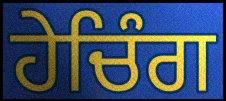
ਹੇਚਿੰਗ